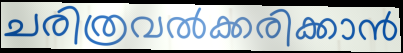
ചരിത്രവൽക്കരിക്കാൻ